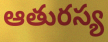
ఆతురస్య